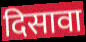
दिसावा